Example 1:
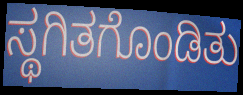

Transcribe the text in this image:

ಸ್ಥಗಿತಗೊಂಡಿತು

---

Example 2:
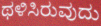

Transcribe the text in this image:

ಥಳಿಸಿರುವುದು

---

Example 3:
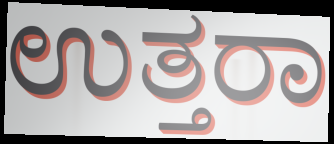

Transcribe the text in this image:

ಉತ್ತರಾ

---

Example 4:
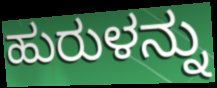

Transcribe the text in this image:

ಹುರುಳನ್ನು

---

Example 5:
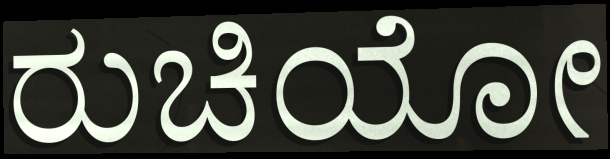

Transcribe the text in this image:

ರುಚಿಯೋ